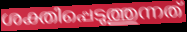
ശക്തിപ്പെടുത്തുന്നത്